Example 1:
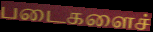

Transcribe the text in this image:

படைகளைச்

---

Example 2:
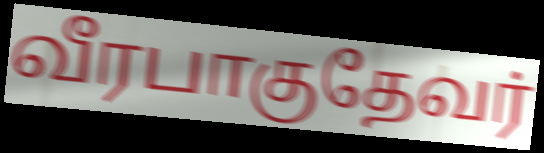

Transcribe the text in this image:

வீரபாகுதேவர்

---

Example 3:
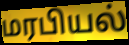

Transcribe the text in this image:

மரபியல்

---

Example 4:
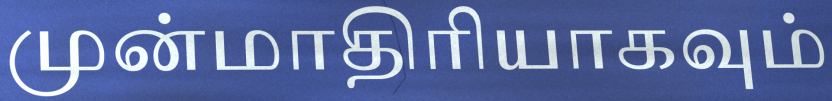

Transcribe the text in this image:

முன்மாதிரியாகவும்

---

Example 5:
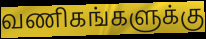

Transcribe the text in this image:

வணிகங்களுக்கு